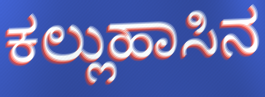
ಕಲ್ಲುಹಾಸಿನ